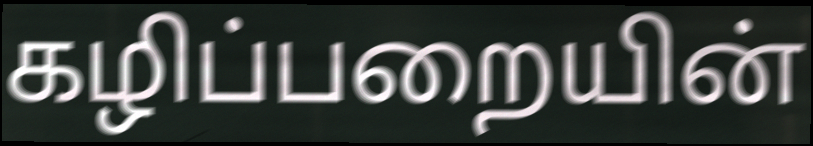
கழிப்பறையின்